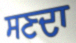
ਸਣਦਾ